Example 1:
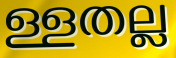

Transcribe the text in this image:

ള്ളതല്ല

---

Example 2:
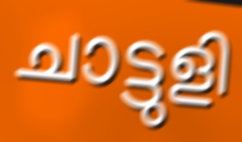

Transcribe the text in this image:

ചാട്ടുളി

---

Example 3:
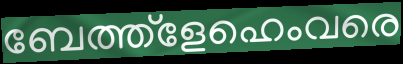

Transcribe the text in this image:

ബേത്ത്ളേഹെംവരെ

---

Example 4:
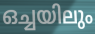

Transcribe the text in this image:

ഒച്ചയിലും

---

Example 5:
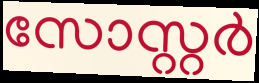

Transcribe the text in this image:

സോസ്റ്റർ